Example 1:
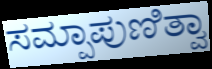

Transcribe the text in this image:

ಸಮ್ಪಾಪುಣಿತ್ವಾ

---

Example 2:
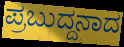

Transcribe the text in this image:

ಪ್ರಬುದ್ದನಾದ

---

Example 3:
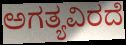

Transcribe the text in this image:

ಅಗತ್ಯವಿರದೆ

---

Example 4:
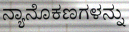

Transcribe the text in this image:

ನ್ಯಾನೊಕಣಗಳನ್ನು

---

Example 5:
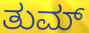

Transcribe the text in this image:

ತುಮ್